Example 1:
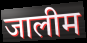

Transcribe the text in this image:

जालीम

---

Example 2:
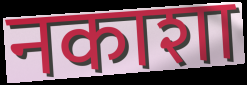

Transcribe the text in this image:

नकाशा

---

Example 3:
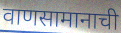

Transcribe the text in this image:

वाणसामानाची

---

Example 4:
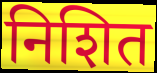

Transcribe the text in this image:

निशित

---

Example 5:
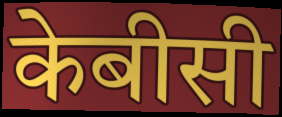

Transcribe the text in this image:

केबीसी